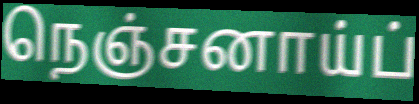
நெஞ்சனாய்ப்